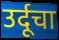
उर्दूचा